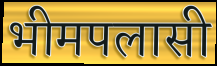
भीमपलासी